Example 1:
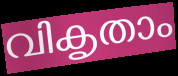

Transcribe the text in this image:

വികൃതാം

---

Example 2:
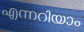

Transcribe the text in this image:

എന്നറിയാം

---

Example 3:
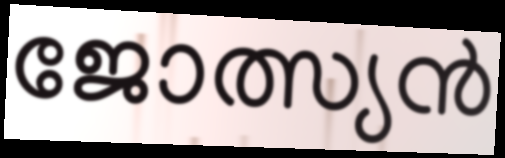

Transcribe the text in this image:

ജോത്സ്യൻ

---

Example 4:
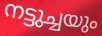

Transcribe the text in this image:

നട്ടുച്ചയും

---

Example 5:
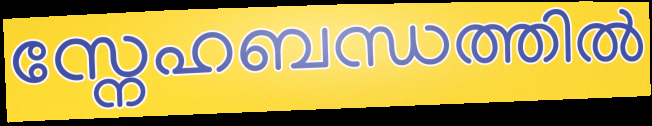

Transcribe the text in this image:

സ്നേഹബന്ധത്തിൽ